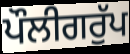
ਪੌਲੀਗਰੁੱਪ